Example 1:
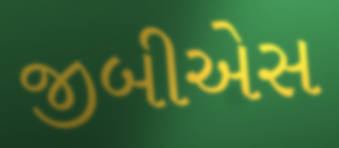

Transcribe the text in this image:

જીબીએસ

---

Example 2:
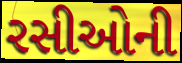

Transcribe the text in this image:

રસીઓની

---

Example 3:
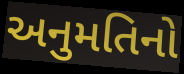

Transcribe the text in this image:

અનુમતિનો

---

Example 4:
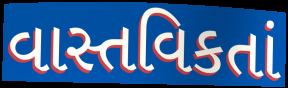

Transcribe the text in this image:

વાસ્તવિકતાં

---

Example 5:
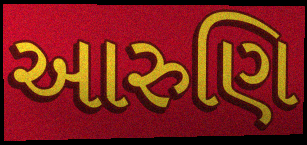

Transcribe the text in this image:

આરુણિ